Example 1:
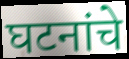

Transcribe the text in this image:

घटनांचे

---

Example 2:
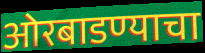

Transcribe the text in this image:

ओरबाडण्याचा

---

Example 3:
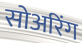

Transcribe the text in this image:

सोअरिंग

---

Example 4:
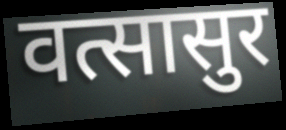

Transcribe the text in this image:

वत्सासुर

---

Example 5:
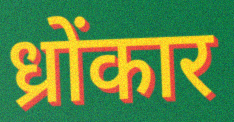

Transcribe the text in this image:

ध्रोंकार